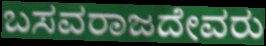
ಬಸವರಾಜದೇವರು